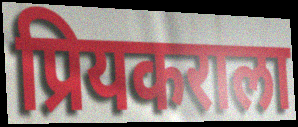
प्रियकराला